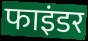
फाइंडर